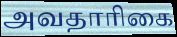
அவதாரிகை